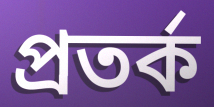
প্রতর্ক